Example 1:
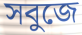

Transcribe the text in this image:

সবুজে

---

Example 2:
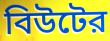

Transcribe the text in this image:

বিউটের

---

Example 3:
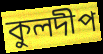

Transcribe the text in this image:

কুলদীপ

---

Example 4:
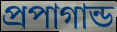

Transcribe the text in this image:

প্রপাগান্ড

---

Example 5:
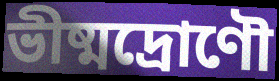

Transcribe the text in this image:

ভীষ্মদ্রোণৌ